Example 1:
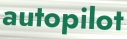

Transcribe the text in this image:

autopilot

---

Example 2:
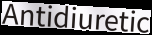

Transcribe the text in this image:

Antidiuretic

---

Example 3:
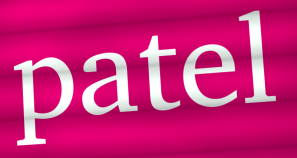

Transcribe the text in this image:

patel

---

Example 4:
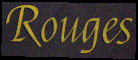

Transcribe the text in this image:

Rouges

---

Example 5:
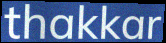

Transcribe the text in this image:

thakkar